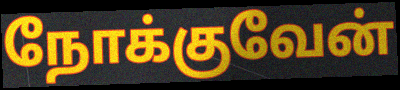
நோக்குவேன்